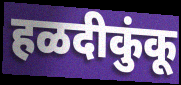
हळदीकुंकू